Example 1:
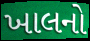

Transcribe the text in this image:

ખાલનો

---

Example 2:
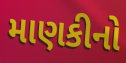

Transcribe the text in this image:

માણકીનો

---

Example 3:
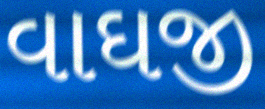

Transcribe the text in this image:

વાઘજી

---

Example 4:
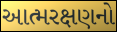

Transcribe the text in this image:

આત્મરક્ષણનો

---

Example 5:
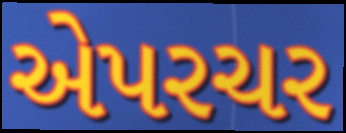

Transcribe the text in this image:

એપરચર